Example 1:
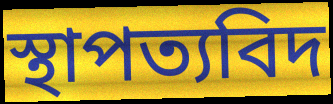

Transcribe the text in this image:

স্থাপত্যবিদ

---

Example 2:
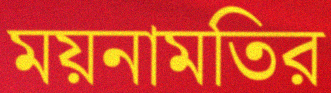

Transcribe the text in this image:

ময়নামতির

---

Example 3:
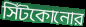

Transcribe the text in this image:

সিঁটকোনোর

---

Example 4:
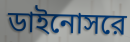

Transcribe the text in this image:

ডাইনোসরে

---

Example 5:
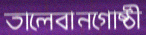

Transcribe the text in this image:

তালেবানগোষ্ঠী